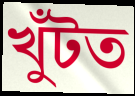
খুঁটত